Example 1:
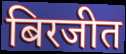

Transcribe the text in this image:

बिरजीत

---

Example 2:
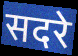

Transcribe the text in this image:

सदरे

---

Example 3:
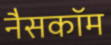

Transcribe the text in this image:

नैसकॉम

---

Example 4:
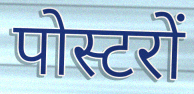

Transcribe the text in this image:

पोस्टरों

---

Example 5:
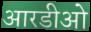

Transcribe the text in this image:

आरडीओ